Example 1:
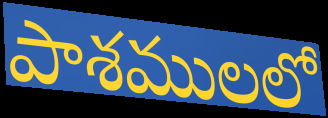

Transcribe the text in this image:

పాశములలో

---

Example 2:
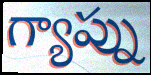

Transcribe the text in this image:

గ్యాప్ను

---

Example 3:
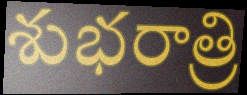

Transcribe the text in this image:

శుభరాత్రి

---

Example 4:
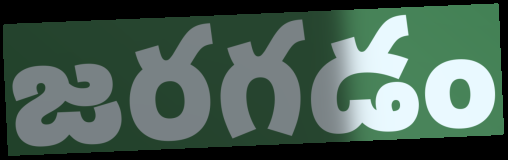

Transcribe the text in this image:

జరగడం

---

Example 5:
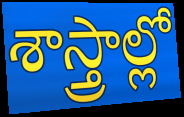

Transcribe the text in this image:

శాస్త్రాల్లో